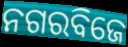
ନଗରବିଜେ